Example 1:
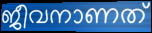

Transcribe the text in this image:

ജീവനാണത്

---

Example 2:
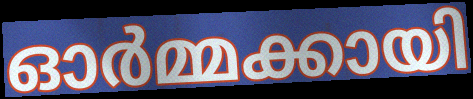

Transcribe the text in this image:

ഓർമ്മക്കായി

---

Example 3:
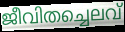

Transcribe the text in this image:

ജീവിതച്ചെലവ്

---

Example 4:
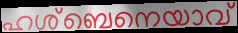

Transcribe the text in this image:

ഹശ്ബെനെയാവ്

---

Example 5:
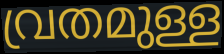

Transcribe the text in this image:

വ്രതമുള്ള